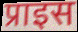
प्राइस